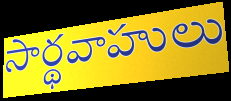
సార్థవాహులు